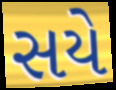
સયે